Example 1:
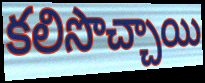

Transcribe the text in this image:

కలిసొచ్చాయి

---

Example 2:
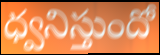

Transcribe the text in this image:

ధ్వనిస్తుందో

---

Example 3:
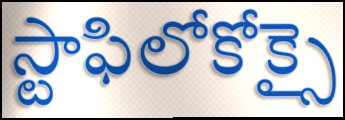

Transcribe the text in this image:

స్టాఫిలోకోక్సై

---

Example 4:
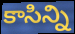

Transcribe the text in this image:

కాసిన్ని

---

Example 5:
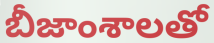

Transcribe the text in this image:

బీజాంశాలతో